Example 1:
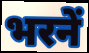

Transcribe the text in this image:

भरनें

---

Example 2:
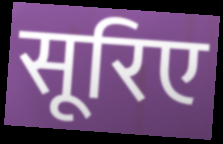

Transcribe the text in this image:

सूरिए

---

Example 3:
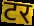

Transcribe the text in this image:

टर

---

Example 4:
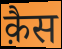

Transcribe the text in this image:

क़ैस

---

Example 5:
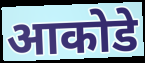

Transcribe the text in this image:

आकोडे